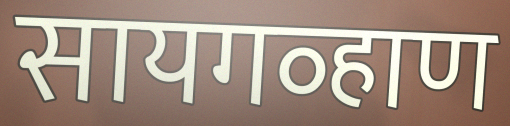
सायगव्हाण